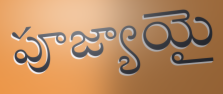
పూజ్యాయై